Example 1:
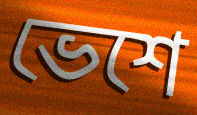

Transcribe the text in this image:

ভেশে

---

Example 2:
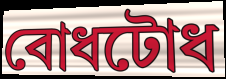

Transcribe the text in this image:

বোধটোধ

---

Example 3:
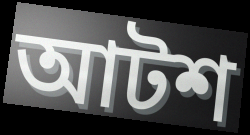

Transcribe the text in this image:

আটশ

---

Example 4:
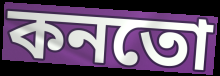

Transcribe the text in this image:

কনতো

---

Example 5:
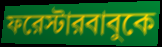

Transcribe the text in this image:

ফরেস্টারবাবুকে